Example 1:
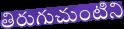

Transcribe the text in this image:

తిరుగుచుంటిని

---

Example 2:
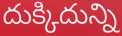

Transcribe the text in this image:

దుక్కిదున్ని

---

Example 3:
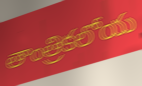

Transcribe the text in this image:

తాంత్రికలోయ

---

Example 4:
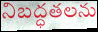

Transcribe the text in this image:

నిబద్ధతలను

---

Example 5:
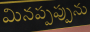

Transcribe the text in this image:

మినప్పప్పును